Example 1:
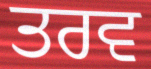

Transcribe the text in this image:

ਤਰਵ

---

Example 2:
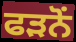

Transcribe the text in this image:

ਫੜਨੋਂ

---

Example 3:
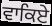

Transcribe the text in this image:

ਵਾਕਿਏ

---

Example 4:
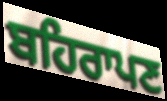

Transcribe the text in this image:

ਬਹਿਰਾਪਣ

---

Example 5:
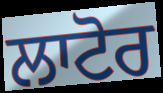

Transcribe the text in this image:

ਲਾਟੋਰ